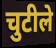
चुटीले